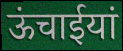
ऊंचाईयां